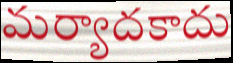
మర్యాదకాదు